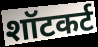
शॉटकर्ट